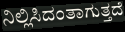
ನಿಲ್ಲಿಸಿದಂತಾಗುತ್ತದೆ